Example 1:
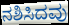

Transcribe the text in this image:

ನಶಿಸಿದವು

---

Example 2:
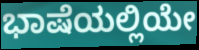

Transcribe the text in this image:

ಭಾಷೆಯಲ್ಲಿಯೇ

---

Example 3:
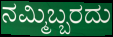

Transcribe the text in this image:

ನಮ್ಮಿಬ್ಬರದು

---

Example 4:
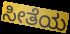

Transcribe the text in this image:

ಸೀತೆಯ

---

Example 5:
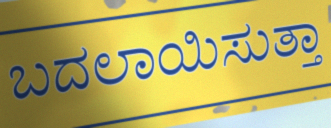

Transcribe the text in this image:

ಬದಲಾಯಿಸುತ್ತಾ